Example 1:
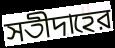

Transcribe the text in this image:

সতীদাহের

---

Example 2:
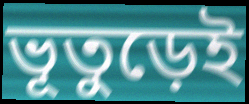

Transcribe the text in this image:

ভূতুড়েই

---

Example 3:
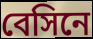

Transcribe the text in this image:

বেসিনে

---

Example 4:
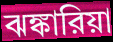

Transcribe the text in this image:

ঝঙ্কারিয়া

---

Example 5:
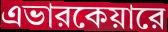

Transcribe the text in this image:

এভারকেয়ারে